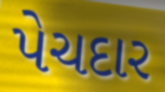
પેચદાર